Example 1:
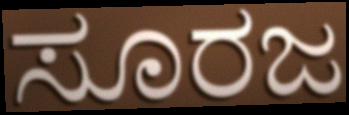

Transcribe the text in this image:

ಸೂರಜ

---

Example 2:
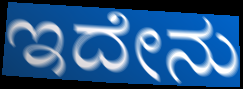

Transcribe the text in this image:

ಇದೇನು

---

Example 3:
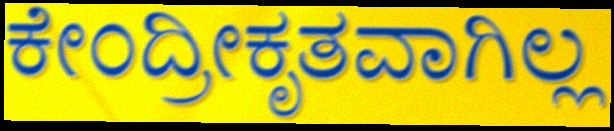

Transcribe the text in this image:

ಕೇಂದ್ರೀಕೃತವಾಗಿಲ್ಲ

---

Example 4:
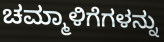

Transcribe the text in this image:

ಚಮ್ಮಾಳಿಗೆಗಳನ್ನು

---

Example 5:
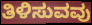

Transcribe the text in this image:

ತಿಳಿಸುವವು